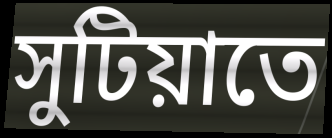
সুটিয়াতে